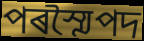
পৰস্মৈপদ